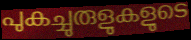
പുകച്ചുരുളുകളുടെ